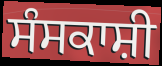
ਸੰਸਕਾਸ਼ੀ